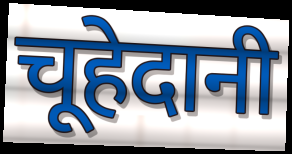
चूहेदानी